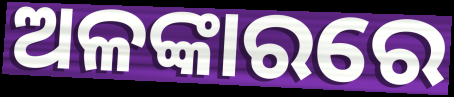
ଅଳଙ୍କାରରେ